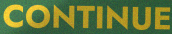
CONTINUE